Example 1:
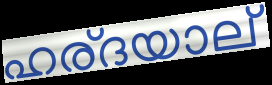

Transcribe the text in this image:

ഹര്ദയാല്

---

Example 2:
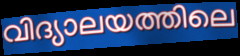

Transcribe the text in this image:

വിദ്യാലയത്തിലെ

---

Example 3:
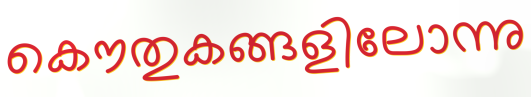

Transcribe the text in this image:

കൌതുകങ്ങളിലോന്നു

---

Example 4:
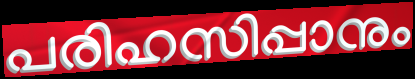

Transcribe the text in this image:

പരിഹസിപ്പാനും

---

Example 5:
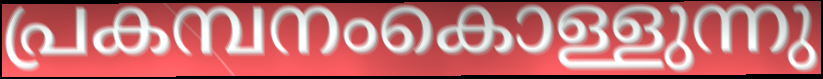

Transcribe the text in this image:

പ്രകമ്പനംകൊള്ളുന്നു